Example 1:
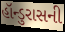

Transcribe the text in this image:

હૉન્ડુરાસની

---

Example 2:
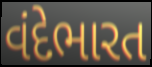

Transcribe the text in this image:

વંદેભારત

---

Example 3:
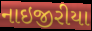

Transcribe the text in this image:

નાઇજીરીયા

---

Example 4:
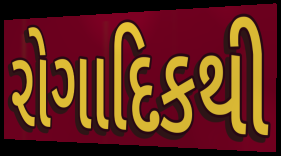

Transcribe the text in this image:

રોગાદિકથી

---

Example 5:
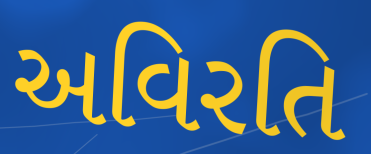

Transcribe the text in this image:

અવિરતિ